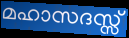
മഹാസദസ്സ്